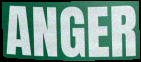
ANGER